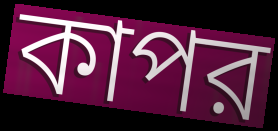
কাপর